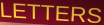
LETTERS